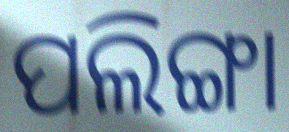
ପଲିଙ୍ଗା